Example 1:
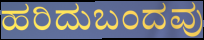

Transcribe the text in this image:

ಹರಿದುಬಂದವು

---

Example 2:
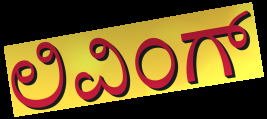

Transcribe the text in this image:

ಲಿವಿಂಗ್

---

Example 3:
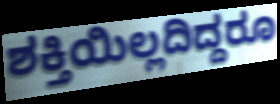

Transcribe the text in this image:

ಶಕ್ತಿಯಿಲ್ಲದಿದ್ದರೂ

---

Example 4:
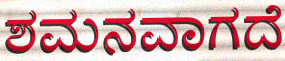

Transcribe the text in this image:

ಶಮನವಾಗದೆ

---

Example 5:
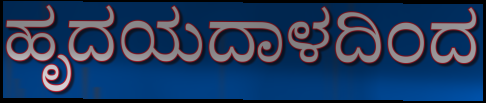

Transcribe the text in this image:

ಹೃದಯದಾಳದಿಂದ